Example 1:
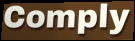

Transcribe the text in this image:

Comply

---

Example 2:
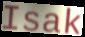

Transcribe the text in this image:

Isak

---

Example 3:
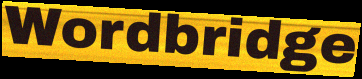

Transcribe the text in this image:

Wordbridge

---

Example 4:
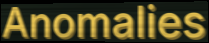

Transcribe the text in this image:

Anomalies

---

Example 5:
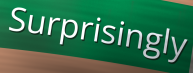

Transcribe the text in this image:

Surprisingly